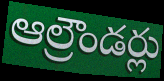
ఆల్రౌండర్లు